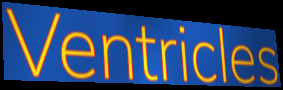
Ventricles